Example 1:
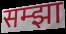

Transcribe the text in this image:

सम्झा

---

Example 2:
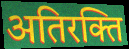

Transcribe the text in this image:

अतिरक्ति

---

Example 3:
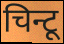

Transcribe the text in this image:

चिन्टू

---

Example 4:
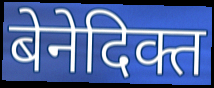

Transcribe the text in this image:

बेनेदिक्त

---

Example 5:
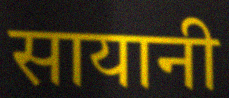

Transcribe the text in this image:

सायानी